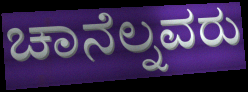
ಚಾನೆಲ್ನವರು